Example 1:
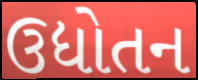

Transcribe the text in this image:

ઉદ્યોતન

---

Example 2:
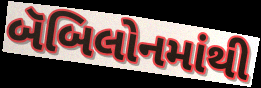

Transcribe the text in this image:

બૅબિલોનમાંથી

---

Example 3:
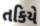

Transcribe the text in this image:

તકિયે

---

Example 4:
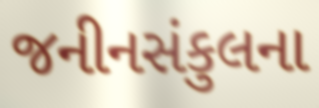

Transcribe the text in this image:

જનીનસંકુલના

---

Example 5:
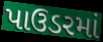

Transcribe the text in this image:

પાઉડરમાં